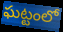
ఘట్టంలో